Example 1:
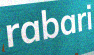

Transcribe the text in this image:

rabari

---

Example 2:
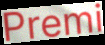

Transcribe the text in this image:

Premi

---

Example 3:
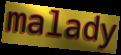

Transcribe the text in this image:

malady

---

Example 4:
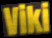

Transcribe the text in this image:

Viki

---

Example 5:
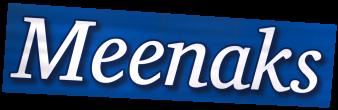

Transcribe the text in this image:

Meenaks